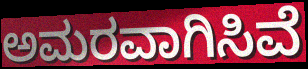
ಅಮರವಾಗಿಸಿವೆ